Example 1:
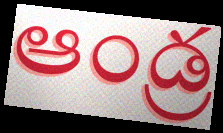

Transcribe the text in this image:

ఆండ్ర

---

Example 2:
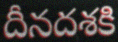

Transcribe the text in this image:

దీనదశకి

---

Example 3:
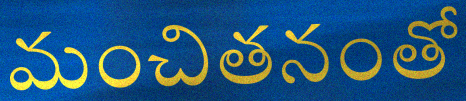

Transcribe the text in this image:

మంచితనంతో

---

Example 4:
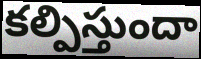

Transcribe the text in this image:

కల్పిస్తుందా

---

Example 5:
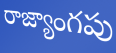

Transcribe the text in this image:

రాజ్యాంగపు